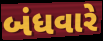
બંધવારે